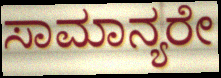
ಸಾಮಾನ್ಯರೇ